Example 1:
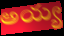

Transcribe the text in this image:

అయ్య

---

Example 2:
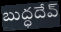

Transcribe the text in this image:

బుద్ధదేవ్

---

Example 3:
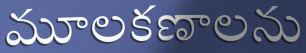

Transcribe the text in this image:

మూలకణాలను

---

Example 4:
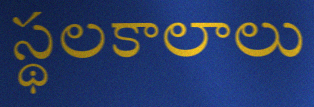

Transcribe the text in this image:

స్థలకాలాలు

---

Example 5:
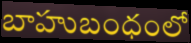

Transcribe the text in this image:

బాహుబంధంలో